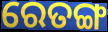
ରେତଙ୍ଗ